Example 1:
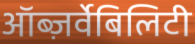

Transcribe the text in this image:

ऑब्ज़र्वेबिलिटी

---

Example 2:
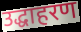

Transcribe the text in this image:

उद्धाहरण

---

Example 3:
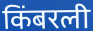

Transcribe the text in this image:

किंबरली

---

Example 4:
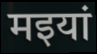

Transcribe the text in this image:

मइयां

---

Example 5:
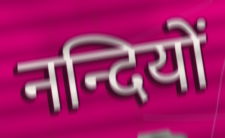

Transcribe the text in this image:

नन्दियों